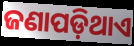
ଜଣାପଡ଼ିଥାଏ